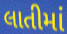
લાતીમાં